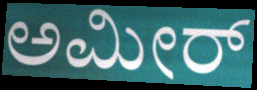
ಅಮೀರ್